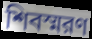
শিবস্মরণ